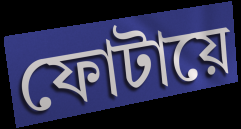
ফোটায়ে